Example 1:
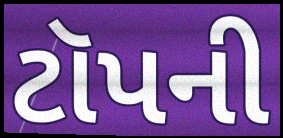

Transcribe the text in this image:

ટૉપની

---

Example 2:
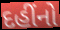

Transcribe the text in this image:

દહીંનો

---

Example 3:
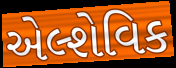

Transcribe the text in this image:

એલ્શેવિક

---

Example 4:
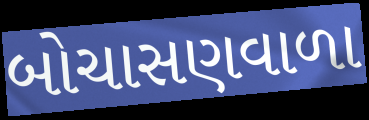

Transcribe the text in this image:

બોચાસણવાળા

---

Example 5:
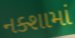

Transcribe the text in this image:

નક્શામાં